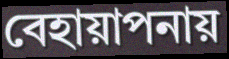
বেহায়াপনায়